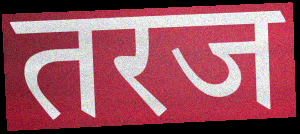
तरज